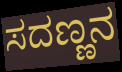
ಸದಣ್ಣನ